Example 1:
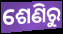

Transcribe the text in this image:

ଶେଣିରୁ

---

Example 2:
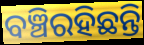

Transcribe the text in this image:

ବଞ୍ଚିରହିଛନ୍ତି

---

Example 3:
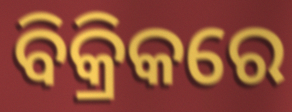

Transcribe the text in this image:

ବିକ୍ରିକରେ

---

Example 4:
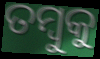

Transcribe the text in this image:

ତମ୍ବୁକୁ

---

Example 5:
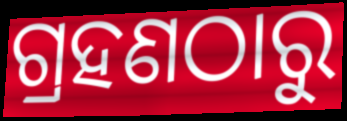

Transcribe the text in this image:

ଗ୍ରହଣଠାରୁ